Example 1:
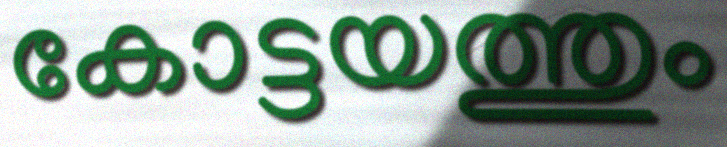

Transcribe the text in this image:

കോട്ടയത്തും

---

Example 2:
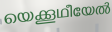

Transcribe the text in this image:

യെക്കൂഥീയേൽ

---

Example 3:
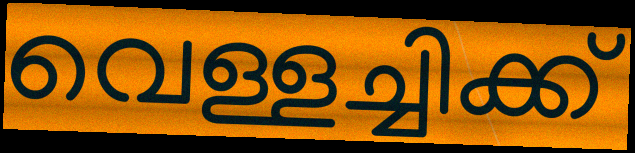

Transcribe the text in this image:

വെള്ളച്ചിക്ക്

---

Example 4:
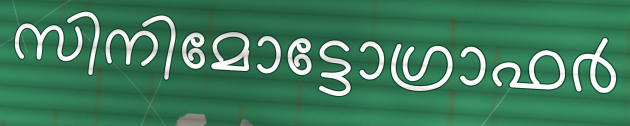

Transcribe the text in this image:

സിനിമോട്ടോഗ്രാഫർ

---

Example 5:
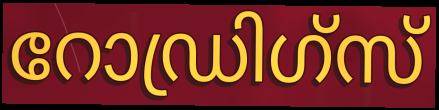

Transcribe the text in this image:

റോഡ്രിഗ്സ്